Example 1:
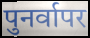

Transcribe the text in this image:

पुनर्वापर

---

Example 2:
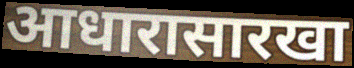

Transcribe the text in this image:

आधारासारखा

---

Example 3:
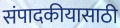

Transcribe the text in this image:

संपादकीयासाठी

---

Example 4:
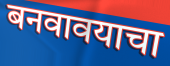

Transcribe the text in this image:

बनवावयाचा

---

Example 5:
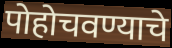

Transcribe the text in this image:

पोहोचवण्याचे